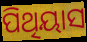
ପିଥିୟାସ